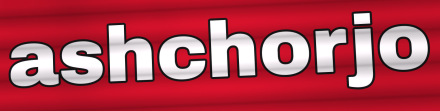
ashchorjo